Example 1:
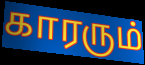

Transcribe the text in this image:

காரரும்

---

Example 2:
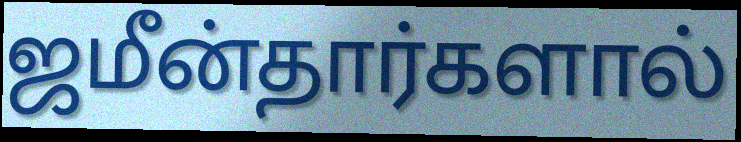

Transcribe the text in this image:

ஜமீன்தார்களால்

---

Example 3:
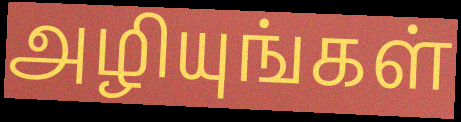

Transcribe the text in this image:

அழியுங்கள்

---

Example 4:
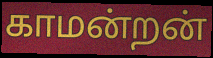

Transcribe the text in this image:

காமன்றன்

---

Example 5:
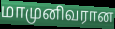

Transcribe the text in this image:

மாமுனிவரான